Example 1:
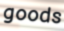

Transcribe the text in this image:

goods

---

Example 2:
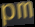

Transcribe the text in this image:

pm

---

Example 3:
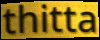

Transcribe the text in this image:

thitta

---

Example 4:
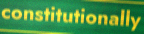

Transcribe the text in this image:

constitutionally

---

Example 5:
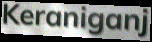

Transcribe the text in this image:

Keraniganj